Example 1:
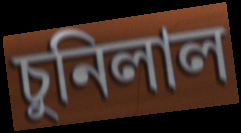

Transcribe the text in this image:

চুনিলাল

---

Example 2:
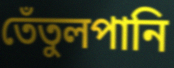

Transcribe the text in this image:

তেঁতুলপানি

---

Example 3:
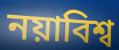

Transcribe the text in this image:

নয়াবিশ্ব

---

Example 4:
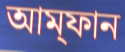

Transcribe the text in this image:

আম্‌ফান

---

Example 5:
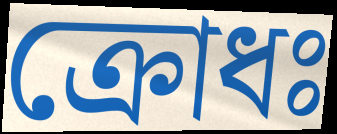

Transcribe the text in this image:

ক্রোধঃ